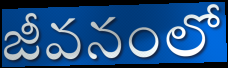
జీవనంలో